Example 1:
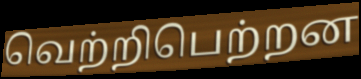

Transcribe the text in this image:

வெற்றிபெற்றன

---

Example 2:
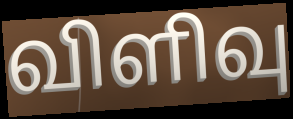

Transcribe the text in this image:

விளிவு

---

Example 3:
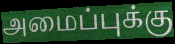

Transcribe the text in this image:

அமைப்புக்கு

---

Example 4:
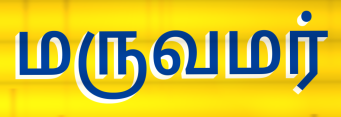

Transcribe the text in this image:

மருவமர்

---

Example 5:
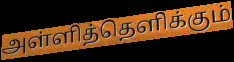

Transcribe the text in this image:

அள்ளித்தெளிக்கும்